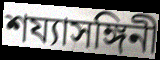
শয্যাসঙ্গিনী